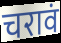
चरावं